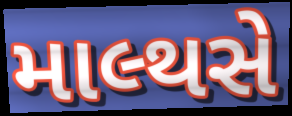
માલ્થસે